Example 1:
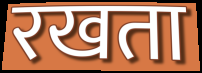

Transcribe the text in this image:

रखता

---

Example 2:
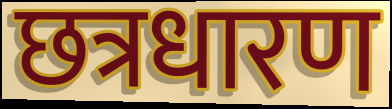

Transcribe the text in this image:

छत्रधारण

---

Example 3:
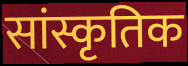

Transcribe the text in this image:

सांस्कृतिक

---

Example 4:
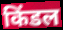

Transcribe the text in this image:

किंडल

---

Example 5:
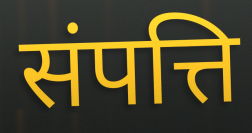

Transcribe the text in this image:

संपत्ति